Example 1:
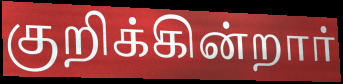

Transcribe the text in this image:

குறிக்கின்றார்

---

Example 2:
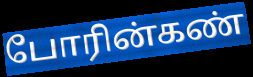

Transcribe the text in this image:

போரின்கண்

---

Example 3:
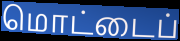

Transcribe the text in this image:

மொட்டைப்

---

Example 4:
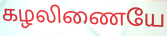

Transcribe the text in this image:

கழலிணையே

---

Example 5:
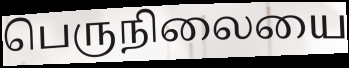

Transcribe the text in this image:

பெருநிலையை